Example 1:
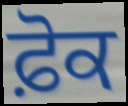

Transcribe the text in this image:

ਫ਼ੋਕ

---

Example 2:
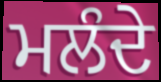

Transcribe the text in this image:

ਮਲੰਦੇ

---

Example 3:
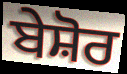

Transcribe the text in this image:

ਬੇਸ਼ੋਰ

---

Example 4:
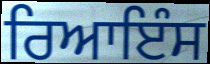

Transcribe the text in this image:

ਰਿਆਇੰਸ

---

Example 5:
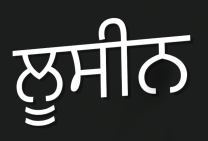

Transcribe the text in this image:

ਲੂਸੀਨ